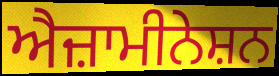
ਐਜ਼ਾਮੀਨੇਸ਼ਨ